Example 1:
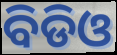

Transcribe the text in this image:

ବିଡିଓ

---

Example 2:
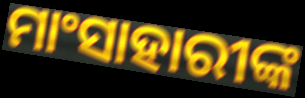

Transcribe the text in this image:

ମାଂସାହାରୀଙ୍କ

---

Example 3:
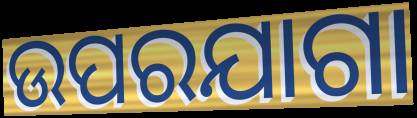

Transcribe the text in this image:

ଉପରଯାଗା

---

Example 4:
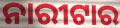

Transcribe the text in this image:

ନାରୀଟାର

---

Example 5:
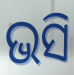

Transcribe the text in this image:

ଭସି